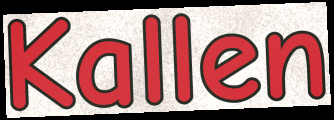
Kallen